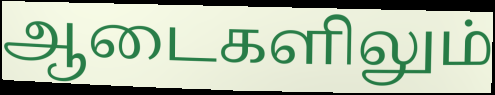
ஆடைகளிலும்